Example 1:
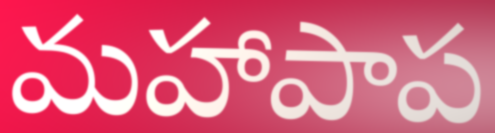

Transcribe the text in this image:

మహాపాప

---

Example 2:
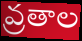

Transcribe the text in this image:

వ్రతాల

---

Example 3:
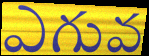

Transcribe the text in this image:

ఎగువ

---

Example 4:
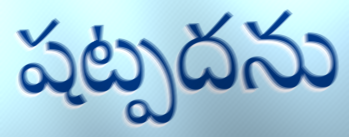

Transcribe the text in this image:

షట్పదను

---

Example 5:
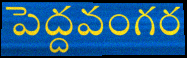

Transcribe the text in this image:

పెద్దవంగర